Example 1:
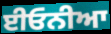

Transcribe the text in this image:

ਈਓਨੀਆ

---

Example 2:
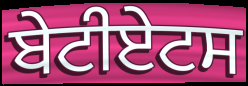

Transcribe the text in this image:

ਬੇਟੀਏਟਸ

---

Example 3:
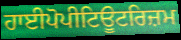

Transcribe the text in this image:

ਹਾਈਪੋਪੀਟਿਊਟਰਿਜ਼ਮ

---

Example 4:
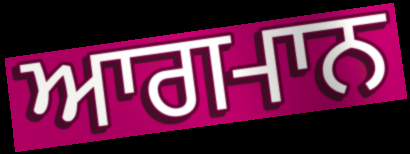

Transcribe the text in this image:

ਆਗ੍ਮਾਨ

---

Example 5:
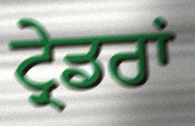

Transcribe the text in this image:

ਟ੍ਰੇਡਰਾਂ